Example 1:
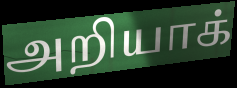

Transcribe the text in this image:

அறியாக்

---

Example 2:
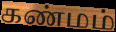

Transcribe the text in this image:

கண்மம்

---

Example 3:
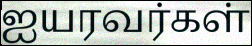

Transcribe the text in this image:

ஐயரவர்கள்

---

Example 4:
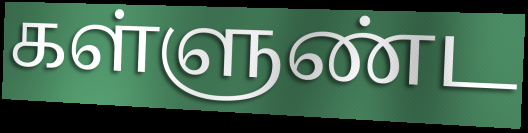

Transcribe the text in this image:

கள்ளுண்ட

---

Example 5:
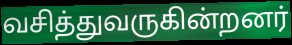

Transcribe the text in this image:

வசித்துவருகின்றனர்